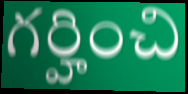
గర్హించి